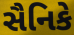
સૈનિકે